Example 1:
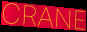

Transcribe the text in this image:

CRANE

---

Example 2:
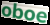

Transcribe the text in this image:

oboe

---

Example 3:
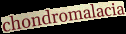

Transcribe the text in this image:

chondromalacia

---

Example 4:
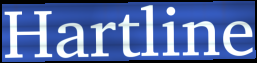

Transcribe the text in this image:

Hartline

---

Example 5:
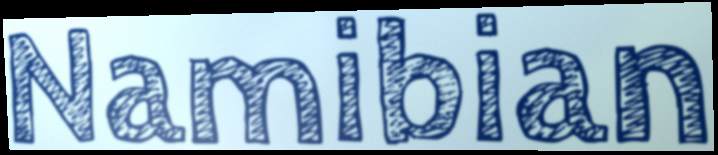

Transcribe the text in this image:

Namibian